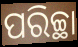
ପରିଚ୍ଛା